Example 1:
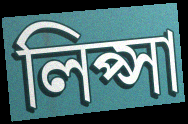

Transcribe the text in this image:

লিপ্সা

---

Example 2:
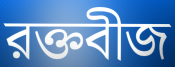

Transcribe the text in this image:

রক্তবীজ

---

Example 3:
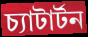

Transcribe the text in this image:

চ্যাটার্টন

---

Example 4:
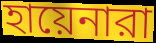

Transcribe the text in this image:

হায়েনারা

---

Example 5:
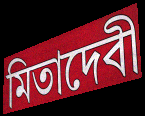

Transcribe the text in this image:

মিতাদেবী